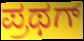
ಪ್ರಥಗ್